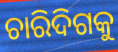
ଚାରିଦିଗକୁ